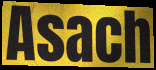
Asach